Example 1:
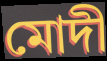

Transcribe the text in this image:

মোদী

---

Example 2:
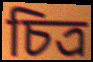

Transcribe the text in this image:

চিত্র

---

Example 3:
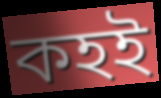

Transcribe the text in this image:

কহই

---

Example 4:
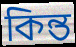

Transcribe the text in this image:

কিন্ত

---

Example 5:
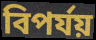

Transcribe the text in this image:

বিপর্যয়